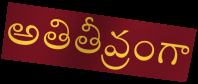
అతితీవ్రంగా